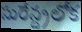
సురేన్ద్రలోక